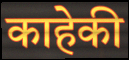
काहेकी